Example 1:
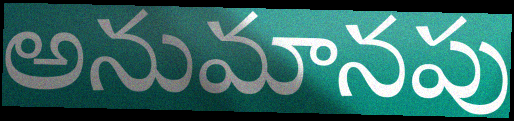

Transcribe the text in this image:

అనుమానపు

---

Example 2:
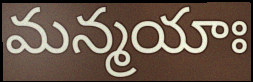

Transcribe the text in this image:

మన్మయాః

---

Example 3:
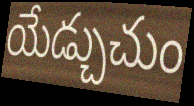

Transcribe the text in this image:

యేడ్చుచుం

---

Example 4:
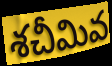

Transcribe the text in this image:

శచీమివ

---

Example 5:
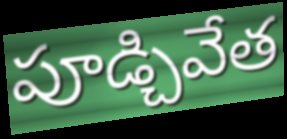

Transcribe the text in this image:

పూడ్చివేత